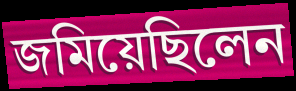
জমিয়েছিলেন